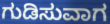
ಗುಡಿಸುವಾಗ